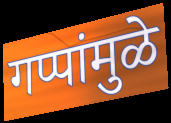
गप्पांमुळे